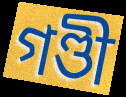
গণ্ডী